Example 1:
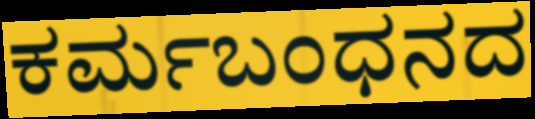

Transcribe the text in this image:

ಕರ್ಮಬಂಧನದ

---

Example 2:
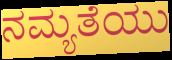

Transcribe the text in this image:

ನಮ್ಯತೆಯು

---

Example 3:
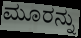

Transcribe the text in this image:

ಮೂರನ್ನು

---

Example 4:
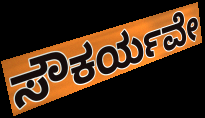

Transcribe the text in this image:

ಸೌಕರ್ಯವೇ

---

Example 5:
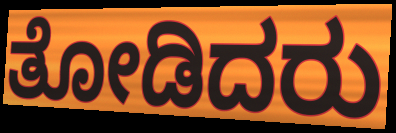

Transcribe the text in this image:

ತೋಡಿದರು